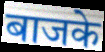
बाजके